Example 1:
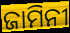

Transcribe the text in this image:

ଜାମିନୀ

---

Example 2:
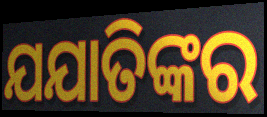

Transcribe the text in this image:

ଯଯାତିଙ୍କର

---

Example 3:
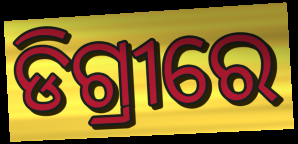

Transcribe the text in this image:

ଡିଗ୍ରୀରେ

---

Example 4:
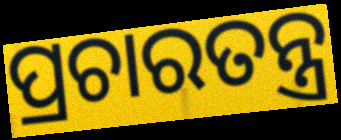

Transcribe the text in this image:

ପ୍ରଚାରତନ୍ତ୍ର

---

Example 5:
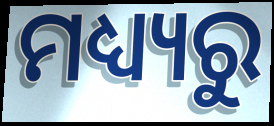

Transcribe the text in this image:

ମଧ୍ୟ୍ୟରୁ